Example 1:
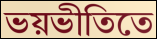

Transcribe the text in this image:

ভয়ভীতিতে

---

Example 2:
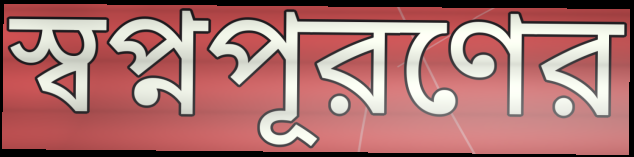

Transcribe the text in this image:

স্বপ্নপূরণের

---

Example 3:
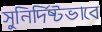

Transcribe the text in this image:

সুনির্দিষ্টভাবে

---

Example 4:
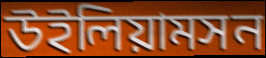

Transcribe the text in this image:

উইলিয়ামসন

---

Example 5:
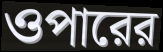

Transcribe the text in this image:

ওপারের